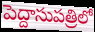
పెద్దాసుపత్రిలో